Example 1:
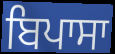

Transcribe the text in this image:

ਬਿਪਾਸਾ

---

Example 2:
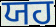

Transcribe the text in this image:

ਯਹ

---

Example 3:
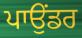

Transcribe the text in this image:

ਪਾਉਂਡਰ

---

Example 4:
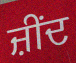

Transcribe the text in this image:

ਜ਼ੀਂਦ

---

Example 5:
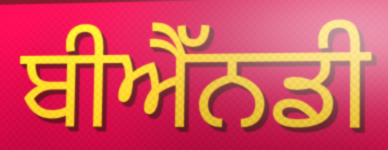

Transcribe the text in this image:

ਬੀਐੱਨਡੀ